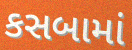
કસબામાં